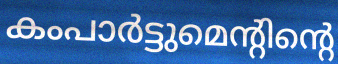
കംപാർട്ടുമെന്റിന്റെ